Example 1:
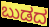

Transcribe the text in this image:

ಬುಡದ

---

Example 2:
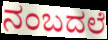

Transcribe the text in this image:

ನಂಬದಲೆ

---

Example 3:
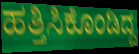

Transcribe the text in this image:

ಹತ್ತಿಸಿಕೊಂಡಿದ್ದ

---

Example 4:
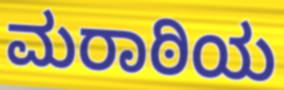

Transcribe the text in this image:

ಮರಾಠಿಯ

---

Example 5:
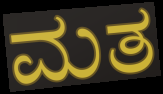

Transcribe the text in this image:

ಮತ